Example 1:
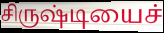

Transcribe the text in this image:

சிருஷ்டியைச்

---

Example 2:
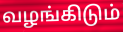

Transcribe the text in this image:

வழங்கிடும்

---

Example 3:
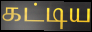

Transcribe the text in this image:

கட்டிய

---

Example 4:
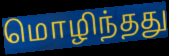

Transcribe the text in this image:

மொழிந்தது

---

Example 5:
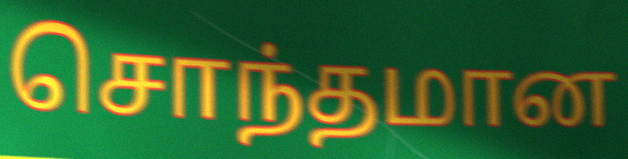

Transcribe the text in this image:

சொந்தமான